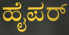
ಹೈಪರ್